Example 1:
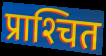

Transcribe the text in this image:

प्राश्चित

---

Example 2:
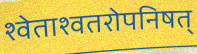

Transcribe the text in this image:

श्वेताश्वतरोपनिषत्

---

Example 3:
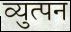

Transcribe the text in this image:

व्युत्पन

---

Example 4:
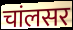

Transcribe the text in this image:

चांलसर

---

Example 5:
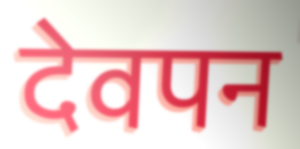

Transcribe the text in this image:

देवपन